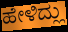
ಹೇಳಿದ್ಲು